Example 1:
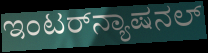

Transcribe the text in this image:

ಇಂಟರ್‌ನ್ಯಾಷನಲ್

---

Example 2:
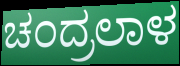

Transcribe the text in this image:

ಚಂದ್ರಲಾಳ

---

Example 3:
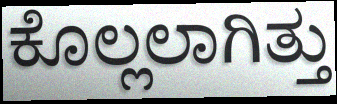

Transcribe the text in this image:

ಕೊಲ್ಲಲಾಗಿತ್ತು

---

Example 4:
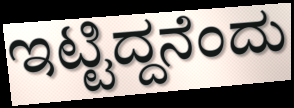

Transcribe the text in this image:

ಇಟ್ಟಿದ್ದನೆಂದು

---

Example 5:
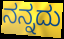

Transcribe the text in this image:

ನನ್ನದು